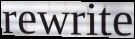
rewrite